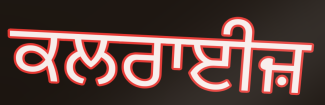
ਕਲਰਾਈਜ਼